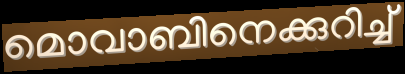
മൊവാബിനെക്കുറിച്ച്